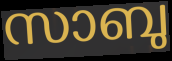
സാബു